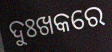
ଦୁଃଖକରେ